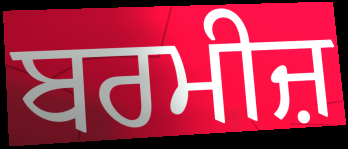
ਬਰਮੀਜ਼